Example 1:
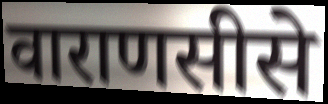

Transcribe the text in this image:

वाराणसीसे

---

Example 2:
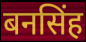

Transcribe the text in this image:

बनसिंह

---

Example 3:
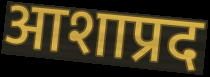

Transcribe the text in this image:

आशाप्रद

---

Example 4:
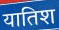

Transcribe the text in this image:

यातिश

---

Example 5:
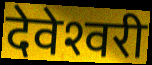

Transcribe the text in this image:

देवेश्वरी